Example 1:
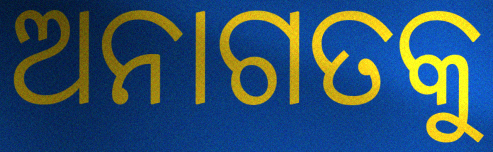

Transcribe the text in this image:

ଅନାଗତକୁ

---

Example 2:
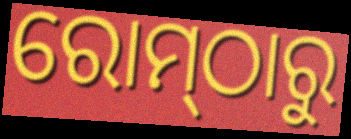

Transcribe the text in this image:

ରୋମ୍‌ଠାରୁ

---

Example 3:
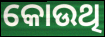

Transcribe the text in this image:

କୋଉଥି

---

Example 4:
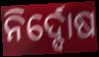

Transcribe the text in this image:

ନିର୍ଦ୍ଦୋଷ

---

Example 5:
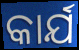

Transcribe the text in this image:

କାର୍ଯ